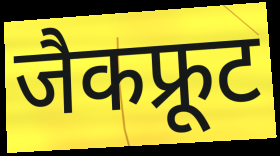
जैकफ्रूट